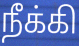
நீக்கி